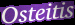
Osteitis